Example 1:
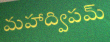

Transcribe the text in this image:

మహాద్విపమ్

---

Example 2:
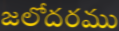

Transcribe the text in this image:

జలోదరము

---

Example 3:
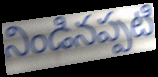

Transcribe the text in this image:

నిండినప్పటి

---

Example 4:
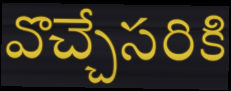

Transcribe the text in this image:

వొచ్చేసరికి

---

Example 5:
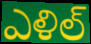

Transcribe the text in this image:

ఎళిల్